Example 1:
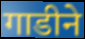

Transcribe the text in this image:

गाडीने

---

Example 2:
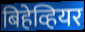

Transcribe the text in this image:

बिहेव्हियर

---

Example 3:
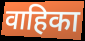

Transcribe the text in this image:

वाहिका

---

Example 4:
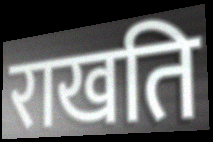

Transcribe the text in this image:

राखति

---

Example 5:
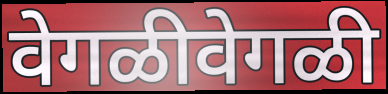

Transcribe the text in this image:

वेगळीवेगळी